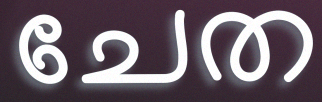
ചേത